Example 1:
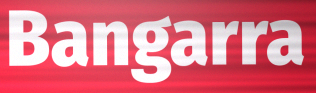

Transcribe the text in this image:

Bangarra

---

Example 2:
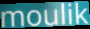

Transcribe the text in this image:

moulik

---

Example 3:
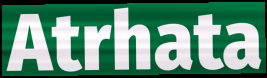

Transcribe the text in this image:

Atrhata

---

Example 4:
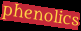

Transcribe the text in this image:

phenolics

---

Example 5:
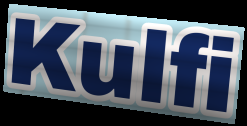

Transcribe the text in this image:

Kulfi